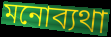
মনোব্যথা